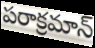
పరాక్రమాన్